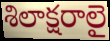
శిలాక్షరాలై